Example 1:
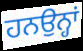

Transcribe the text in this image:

ਹਨਉਨ੍ਹਾਂ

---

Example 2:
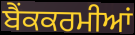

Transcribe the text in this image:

ਬੈਂਕਕਰਮੀਆਂ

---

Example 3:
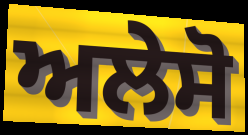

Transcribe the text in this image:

ਅਲੇਸੋ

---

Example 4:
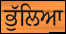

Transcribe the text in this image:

ਭੁੱਲਿਆ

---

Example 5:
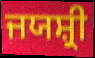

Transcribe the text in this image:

ਜਯਸ਼੍ਰੀ